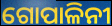
ଗୋପାଳିନୀ